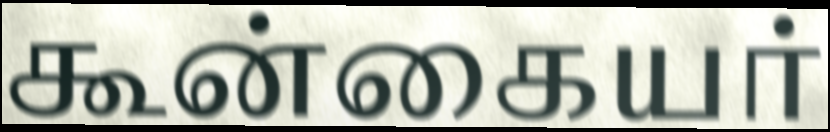
கூன்கையர்